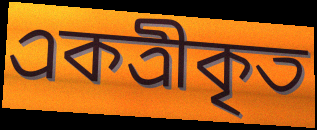
একত্রীকৃত